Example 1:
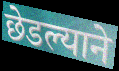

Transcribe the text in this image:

छेडल्याने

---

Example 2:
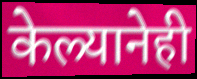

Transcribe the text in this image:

केल्यानेही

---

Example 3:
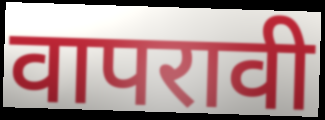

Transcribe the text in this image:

वापरावी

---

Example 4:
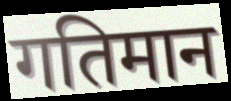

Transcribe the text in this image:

गतिमान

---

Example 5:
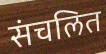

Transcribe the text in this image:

संचलित